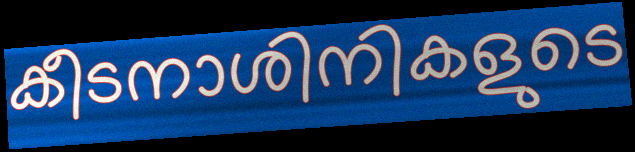
കീടനാശിനികളുടെ